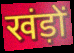
खंड़ों